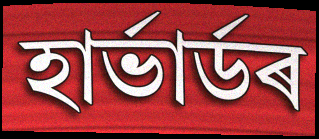
হাৰ্ভাৰ্ডৰ